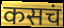
कसचं